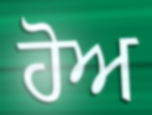
ਹੋਅ